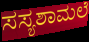
ಸಸ್ಯಶಾಮಲೆ